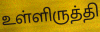
உள்ளிருத்தி